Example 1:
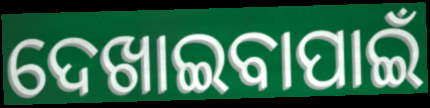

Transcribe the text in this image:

ଦେଖାଇବାପାଇଁ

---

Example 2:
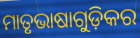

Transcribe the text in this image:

ମାତୃଭାଷାଗୁଡ଼ିକର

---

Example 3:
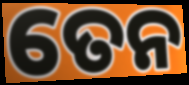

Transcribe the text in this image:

ତେନ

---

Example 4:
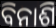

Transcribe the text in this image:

ବିନାଶି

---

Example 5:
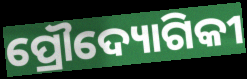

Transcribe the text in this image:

ପ୍ରୌଦ୍ୟୋଗିକୀ